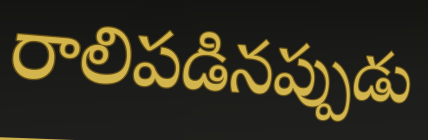
రాలిపడినప్పుడు